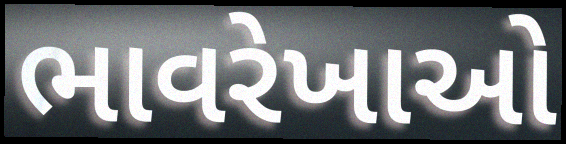
ભાવરેખાઓ